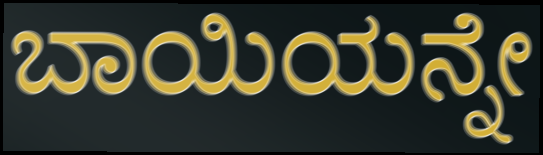
ಬಾಯಿಯನ್ನೇ